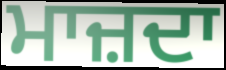
ਮਾਜ਼ਦਾ